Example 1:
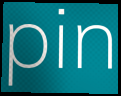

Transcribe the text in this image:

pin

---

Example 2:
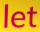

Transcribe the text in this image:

let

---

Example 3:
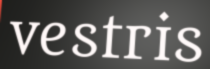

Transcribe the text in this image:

vestris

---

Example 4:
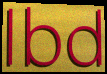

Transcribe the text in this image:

Ibd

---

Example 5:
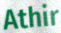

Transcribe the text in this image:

Athir